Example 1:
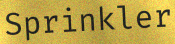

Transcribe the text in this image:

Sprinkler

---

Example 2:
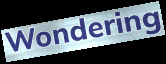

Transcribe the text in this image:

Wondering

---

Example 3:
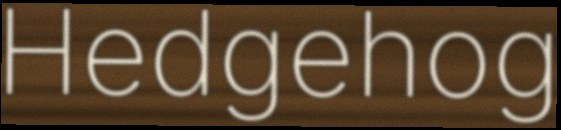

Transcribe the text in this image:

Hedgehog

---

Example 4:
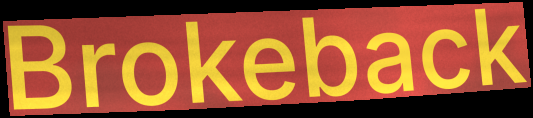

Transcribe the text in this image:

Brokeback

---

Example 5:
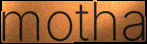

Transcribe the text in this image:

motha